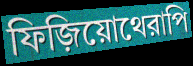
ফিজ়িয়োথেরাপি